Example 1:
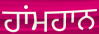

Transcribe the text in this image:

ਹਾਂਮਹਾਨ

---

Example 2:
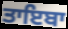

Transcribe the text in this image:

ਤਾਇਬਾ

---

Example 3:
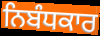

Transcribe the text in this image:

ਨਿਬੰਧਕਾਰ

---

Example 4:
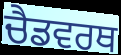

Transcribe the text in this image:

ਚੈਡਵਰਥ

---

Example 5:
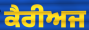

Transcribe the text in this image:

ਕੈਰੀਅਜ